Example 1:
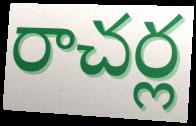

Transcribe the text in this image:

రాచర్ల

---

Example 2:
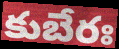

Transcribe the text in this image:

కుబేరః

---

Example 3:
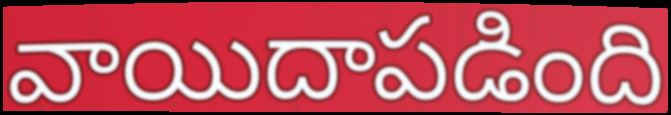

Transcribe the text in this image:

వాయిదాపడింది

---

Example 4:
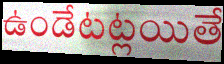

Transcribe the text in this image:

ఉండేటట్లయితే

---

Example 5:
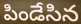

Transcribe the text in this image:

పిండేసిన